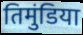
तिमुंडिया